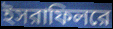
ইসরাফিলরে